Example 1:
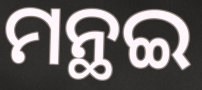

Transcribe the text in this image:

ମନ୍ଥଇ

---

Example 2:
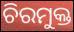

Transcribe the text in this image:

ଚିରମୁକ୍ତ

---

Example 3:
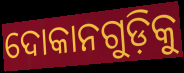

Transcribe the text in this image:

ଦୋକାନଗୁଡ଼ିକୁ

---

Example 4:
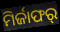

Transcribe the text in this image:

ମିର୍ଜାଫର୍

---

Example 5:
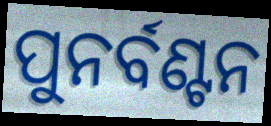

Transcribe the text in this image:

ପୁନର୍ବଣ୍ଟନ